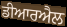
ਡੀਆਰਐਲ